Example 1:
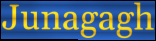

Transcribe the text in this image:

Junagagh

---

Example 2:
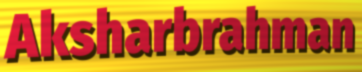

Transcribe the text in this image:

Aksharbrahman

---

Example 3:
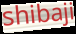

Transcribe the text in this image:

shibaji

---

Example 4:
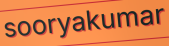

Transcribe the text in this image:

sooryakumar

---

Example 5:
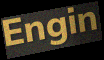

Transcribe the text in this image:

Engin